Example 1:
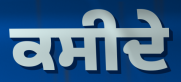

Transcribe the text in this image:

ਕਸੀਦੇ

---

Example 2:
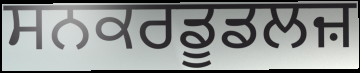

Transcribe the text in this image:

ਸਨਕਰਡੂਡਲਜ਼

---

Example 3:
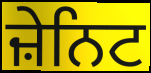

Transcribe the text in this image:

ਜ਼ੇਨਿਟ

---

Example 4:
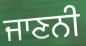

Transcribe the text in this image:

ਜਾਣਨੀ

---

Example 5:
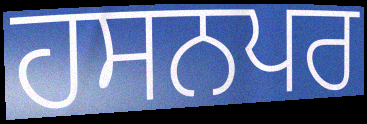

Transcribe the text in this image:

ਹਸਨਪਰ